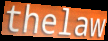
thelaw